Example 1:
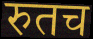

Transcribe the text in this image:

रुतच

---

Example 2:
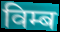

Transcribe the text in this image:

विम्ब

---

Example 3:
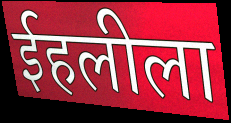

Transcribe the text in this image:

ईहलीला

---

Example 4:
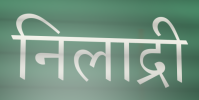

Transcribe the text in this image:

निलाद्री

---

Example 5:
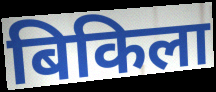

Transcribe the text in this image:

बिकिला